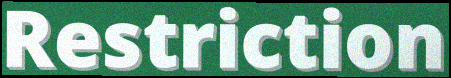
Restriction